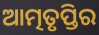
ଆତ୍ମତୃପ୍ତିର